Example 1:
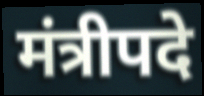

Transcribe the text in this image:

मंत्रीपदे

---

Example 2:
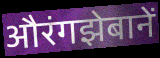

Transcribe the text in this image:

औरंगझेबानें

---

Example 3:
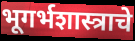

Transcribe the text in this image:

भूगर्भशास्त्राचे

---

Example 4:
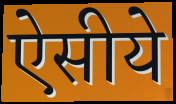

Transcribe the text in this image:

ऐसीये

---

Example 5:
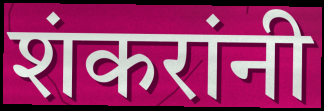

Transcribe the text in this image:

शंकरांनी